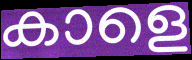
കാളെ